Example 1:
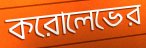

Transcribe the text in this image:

করোলেভের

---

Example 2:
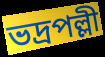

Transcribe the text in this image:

ভদ্রপল্লী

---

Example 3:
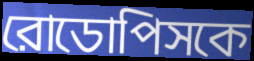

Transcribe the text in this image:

রোডোপিসকে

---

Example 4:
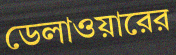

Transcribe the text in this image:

ডেলাওয়ারের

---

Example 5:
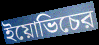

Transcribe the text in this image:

ইয়োভিচের